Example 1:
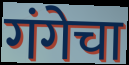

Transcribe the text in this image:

गंगेचा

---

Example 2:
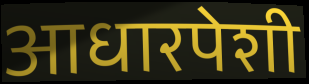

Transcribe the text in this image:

आधारपेशी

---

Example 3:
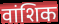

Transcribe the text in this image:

वांशिक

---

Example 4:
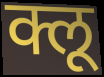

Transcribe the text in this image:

क्लू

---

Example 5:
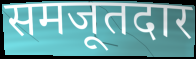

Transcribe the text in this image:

समजूतदार